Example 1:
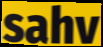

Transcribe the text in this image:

sahv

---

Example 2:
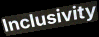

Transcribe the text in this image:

Inclusivity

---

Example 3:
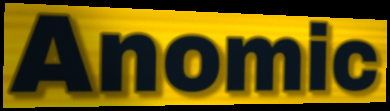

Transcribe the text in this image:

Anomic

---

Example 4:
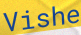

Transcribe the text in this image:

Vishe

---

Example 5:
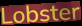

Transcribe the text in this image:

Lobster